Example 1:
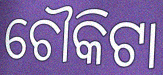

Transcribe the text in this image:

ଚୌକିଟା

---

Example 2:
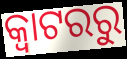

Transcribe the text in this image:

କ୍ୱାଟରରୁ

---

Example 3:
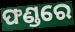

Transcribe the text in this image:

ଫଣ୍ଡରେ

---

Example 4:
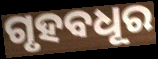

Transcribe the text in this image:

ଗୃହବଧୂର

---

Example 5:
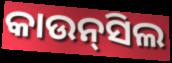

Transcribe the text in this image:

କାଉନ୍‍ସିଲ